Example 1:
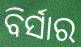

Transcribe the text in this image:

ବିର୍ସାର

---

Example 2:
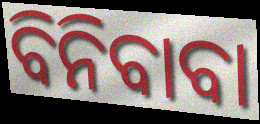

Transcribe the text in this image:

ବିନିବାବା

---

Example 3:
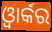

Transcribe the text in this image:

ଓ୍ବାର୍କର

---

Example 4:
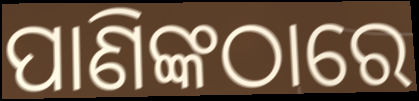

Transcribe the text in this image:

ପାଣିଙ୍କଠାରେ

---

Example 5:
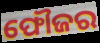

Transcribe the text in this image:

ଫୌଜର